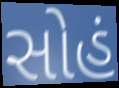
સોહં